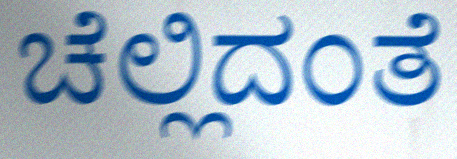
ಚೆಲ್ಲಿದಂತೆ